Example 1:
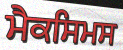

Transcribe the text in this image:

ਮੈਕਸਿਮਸ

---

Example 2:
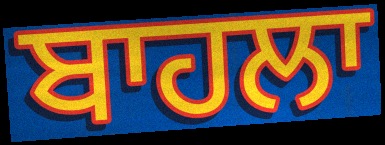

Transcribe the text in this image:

ਬਾਹਲਾ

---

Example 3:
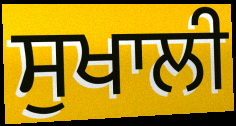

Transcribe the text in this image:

ਸੁਖਾਲੀ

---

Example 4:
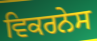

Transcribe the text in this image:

ਵਿਕਰਨੇਸ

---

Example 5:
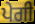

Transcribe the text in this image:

ਪੇਗੀ